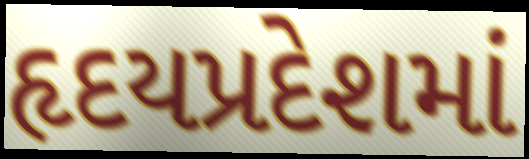
હૃદયપ્રદેશમાં